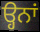
ੳ੍ਹਨਾਂ